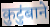
कुटुंबाने